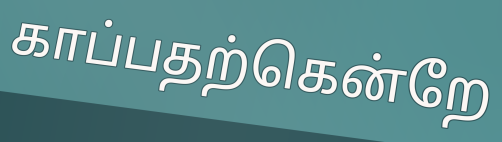
காப்பதற்கென்றே